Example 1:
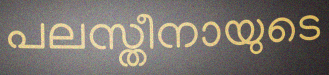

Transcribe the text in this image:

പലസ്തീനായുടെ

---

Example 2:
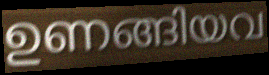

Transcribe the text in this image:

ഉണങ്ങിയവ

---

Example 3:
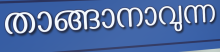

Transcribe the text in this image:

താങ്ങാനാവുന്ന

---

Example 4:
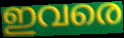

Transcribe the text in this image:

ഇവരെ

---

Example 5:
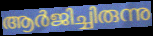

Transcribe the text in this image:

ആർജിച്ചിരുന്നു